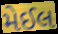
મેઈલ